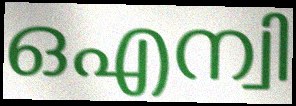
ഒഎന്വി